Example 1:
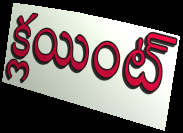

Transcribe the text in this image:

క్లయింట్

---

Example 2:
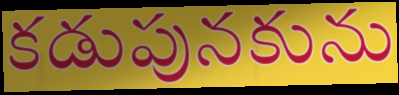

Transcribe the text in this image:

కడుపునకును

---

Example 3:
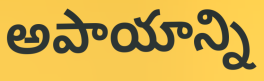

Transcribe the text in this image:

అపాయాన్ని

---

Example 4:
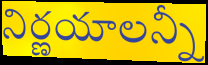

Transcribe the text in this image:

నిర్ణయాలన్నీ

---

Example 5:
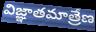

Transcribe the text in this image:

విజ్ఞాతమాత్రేణ